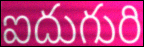
ఐదుగురి